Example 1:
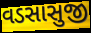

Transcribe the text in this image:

વડસાસુજી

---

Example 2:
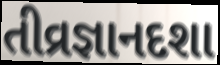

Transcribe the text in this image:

તીવ્રજ્ઞાનદશા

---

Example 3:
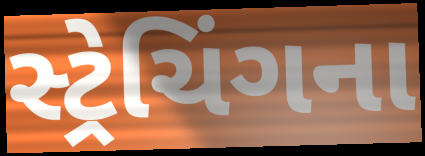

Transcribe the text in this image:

સ્ટ્રેચિંગના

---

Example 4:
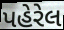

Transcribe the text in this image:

પહેરેલ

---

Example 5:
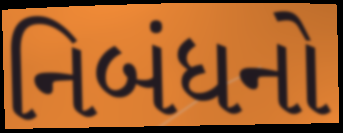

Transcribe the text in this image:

નિબંધનો